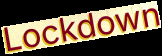
Lockdown